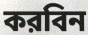
করবিন